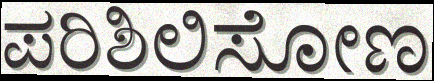
ಪರಿಶಿಲಿಸೋಣ